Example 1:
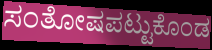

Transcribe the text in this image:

ಸಂತೋಷಪಟ್ಟುಕೊಂಡ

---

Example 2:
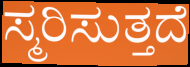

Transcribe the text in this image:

ಸ್ಮರಿಸುತ್ತದೆ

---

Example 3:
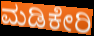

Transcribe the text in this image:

ಮಡಿಕೇರಿ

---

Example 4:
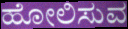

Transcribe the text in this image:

ಹೋಲಿಸುವ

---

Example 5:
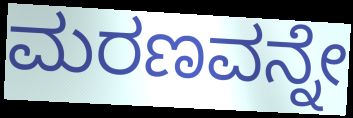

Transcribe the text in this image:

ಮರಣವನ್ನೇ